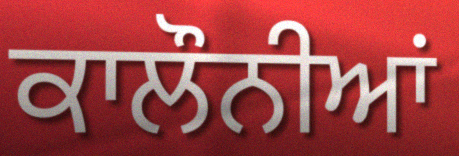
ਕਾਲੌਨੀਆਂ